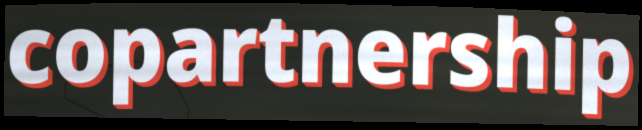
copartnership